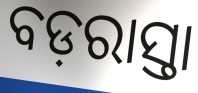
ବଡ଼ରାସ୍ତା